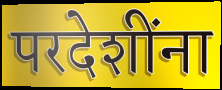
परदेशींना